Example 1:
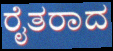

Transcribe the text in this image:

ರೈತರಾದ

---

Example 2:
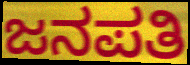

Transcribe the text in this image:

ಜನಪತಿ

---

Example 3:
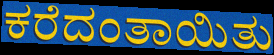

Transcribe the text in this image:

ಕರೆದಂತಾಯಿತು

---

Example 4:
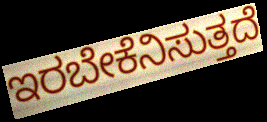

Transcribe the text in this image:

ಇರಬೇಕೆನಿಸುತ್ತದೆ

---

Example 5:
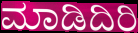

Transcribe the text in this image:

ಮಾಡಿದಿರಿ